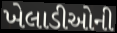
ખેલાડીઓની